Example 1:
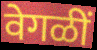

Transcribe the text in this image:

वेगळीं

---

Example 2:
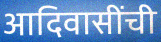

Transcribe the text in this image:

आदिवासींची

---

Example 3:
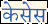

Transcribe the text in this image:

केसेस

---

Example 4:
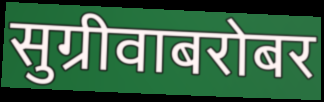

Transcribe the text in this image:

सुग्रीवाबरोबर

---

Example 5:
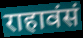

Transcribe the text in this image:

राहावंसं